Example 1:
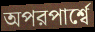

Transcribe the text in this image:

অপরপার্শ্বে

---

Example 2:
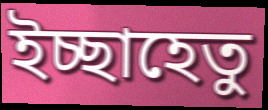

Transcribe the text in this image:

ইচ্ছাহেতু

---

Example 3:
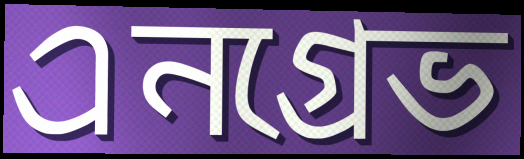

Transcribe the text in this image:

এনগ্রেভ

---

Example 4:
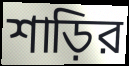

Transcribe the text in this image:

শাড়ির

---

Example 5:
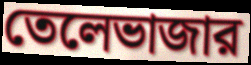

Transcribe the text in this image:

তেলেভাজার